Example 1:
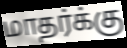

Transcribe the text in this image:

மாதர்க்கு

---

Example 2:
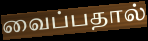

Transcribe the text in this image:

வைப்பதால்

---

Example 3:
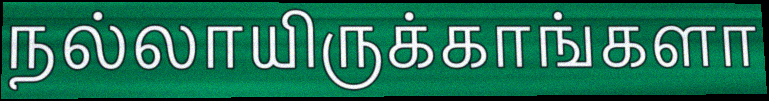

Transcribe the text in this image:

நல்லாயிருக்காங்களா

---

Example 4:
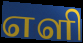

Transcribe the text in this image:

எளி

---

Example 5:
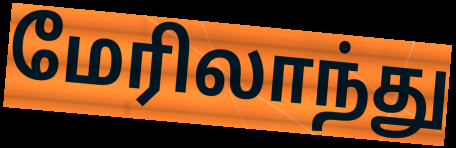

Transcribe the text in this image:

மேரிலாந்து